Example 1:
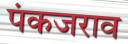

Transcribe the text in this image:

पंकजराव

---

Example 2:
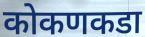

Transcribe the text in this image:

कोकणकडा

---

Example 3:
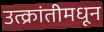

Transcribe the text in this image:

उत्क्रांतीमधून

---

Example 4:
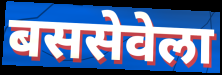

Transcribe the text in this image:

बससेवेला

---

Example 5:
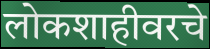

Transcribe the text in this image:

लोकशाहीवरचे